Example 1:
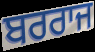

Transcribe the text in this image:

ਬਰਰਾਜ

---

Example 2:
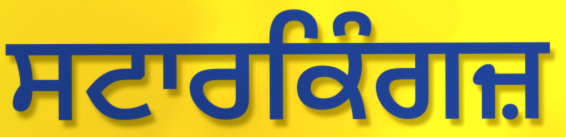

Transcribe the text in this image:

ਸਟਾਰਕਿੰਗਜ਼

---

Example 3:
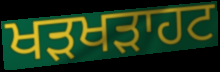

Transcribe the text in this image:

ਖੜਖੜਾਹਟ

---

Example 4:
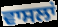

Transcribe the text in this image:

ਵਾਸਲਾਂ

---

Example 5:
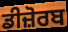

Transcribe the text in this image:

ਡੀਜ਼ੋਰਬ